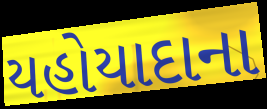
યહોયાદાના